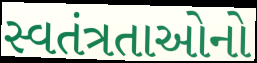
સ્વતંત્રતાઓનો